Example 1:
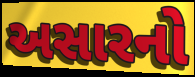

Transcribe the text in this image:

અસારનો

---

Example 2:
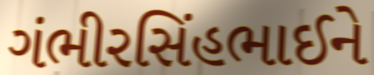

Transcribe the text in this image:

ગંભીરસિંહભાઈને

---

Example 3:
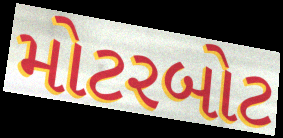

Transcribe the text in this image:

મોટરબોટ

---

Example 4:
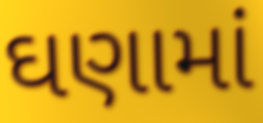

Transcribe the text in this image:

ઘણામાં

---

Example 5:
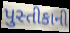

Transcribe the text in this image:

પુસ્તીકાની